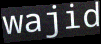
wajid